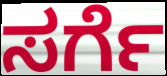
ಸರ್ಗೆ